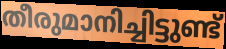
തീരുമാനിച്ചിട്ടുണ്ട്